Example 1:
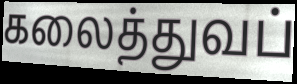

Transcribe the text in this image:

கலைத்துவப்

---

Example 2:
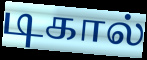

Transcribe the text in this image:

டிகால்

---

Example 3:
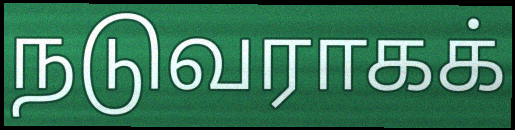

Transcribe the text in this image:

நடுவராகக்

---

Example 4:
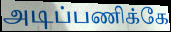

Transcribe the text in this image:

அடிப்பணிக்கே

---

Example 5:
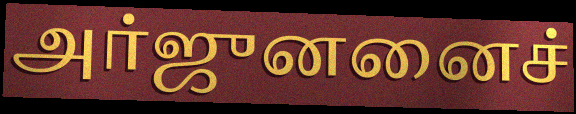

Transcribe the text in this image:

அர்ஜுனனைச்